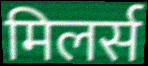
मिलर्स